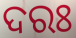
ଦରଃ